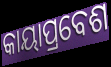
କାୟାପ୍ରବେଶ